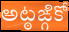
అట్ఠఙ్గికో